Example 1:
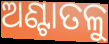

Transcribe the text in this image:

ଅଣ୍ଟାତଳୁ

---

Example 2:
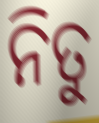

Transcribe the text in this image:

ନିତୁ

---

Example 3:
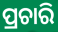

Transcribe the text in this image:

ପ୍ରଚାରି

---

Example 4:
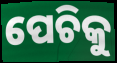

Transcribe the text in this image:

ପେଚିକୁ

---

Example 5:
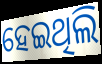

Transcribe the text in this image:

ହେଇଥିଲି